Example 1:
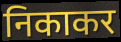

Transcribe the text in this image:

निकाकर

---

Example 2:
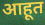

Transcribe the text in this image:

आहूत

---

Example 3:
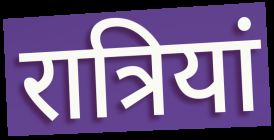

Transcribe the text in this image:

रात्रियां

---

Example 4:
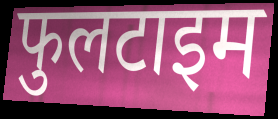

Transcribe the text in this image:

फुलटाइम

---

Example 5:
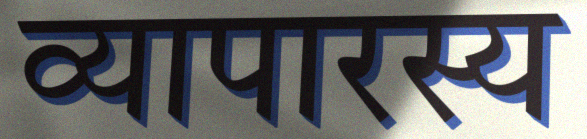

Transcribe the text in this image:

व्यापारस्य